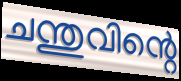
ചന്തുവിന്റെ